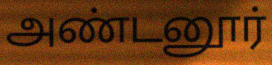
அண்டனூர்